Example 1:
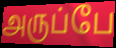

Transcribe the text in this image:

அருப்பே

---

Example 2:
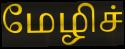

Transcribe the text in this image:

மேழிச்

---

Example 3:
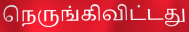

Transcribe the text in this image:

நெருங்கிவிட்டது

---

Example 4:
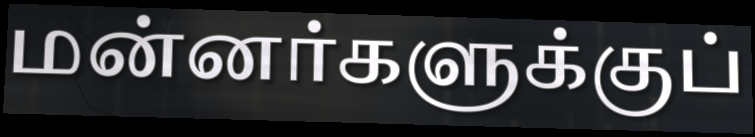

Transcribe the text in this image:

மன்னர்களுக்குப்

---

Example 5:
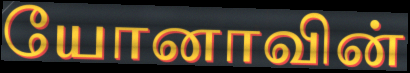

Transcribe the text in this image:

யோனாவின்